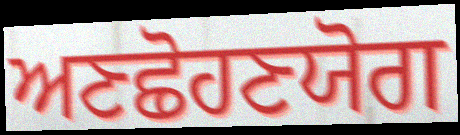
ਅਣਛੋਹਣਯੋਗ